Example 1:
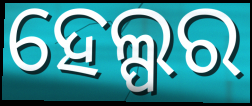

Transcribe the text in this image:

ହେଲ୍ପର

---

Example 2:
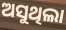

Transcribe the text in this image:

ଅସୁଥିଲା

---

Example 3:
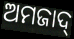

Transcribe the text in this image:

ଅମଜାଦ୍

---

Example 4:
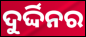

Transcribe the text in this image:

ଦୁର୍ଦ୍ଦିନର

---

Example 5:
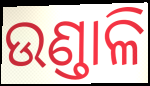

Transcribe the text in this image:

ଉଣ୍ଡାଳି